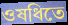
ওষধিতে